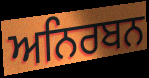
ਅਨਿਰਬਨ